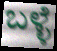
ಬಳ್ಳೆ